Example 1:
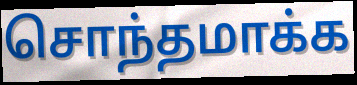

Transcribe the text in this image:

சொந்தமாக்க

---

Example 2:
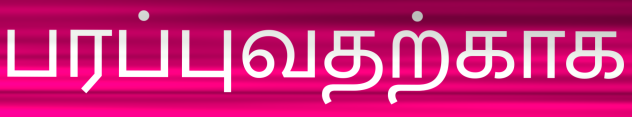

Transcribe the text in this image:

பரப்புவதற்காக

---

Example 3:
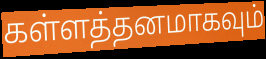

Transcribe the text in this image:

கள்ளத்தனமாகவும்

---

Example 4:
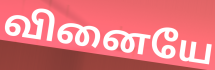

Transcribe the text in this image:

வினையே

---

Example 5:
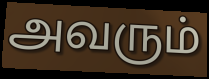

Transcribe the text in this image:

அவரும்